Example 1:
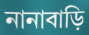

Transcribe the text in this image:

নানাবাড়ি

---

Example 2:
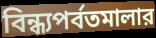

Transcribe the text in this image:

বিন্ধ্যপর্বতমালার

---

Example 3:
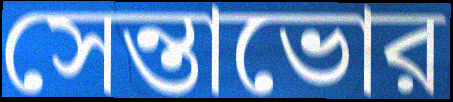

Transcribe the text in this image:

সেন্তাভোর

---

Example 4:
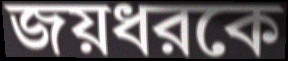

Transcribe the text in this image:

জয়ধরকে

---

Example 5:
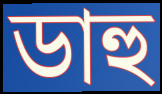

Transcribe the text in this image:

ডাহু